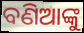
ବଣିଆଙ୍କୁ